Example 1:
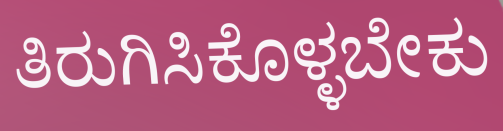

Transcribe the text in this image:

ತಿರುಗಿಸಿಕೊಳ್ಳಬೇಕು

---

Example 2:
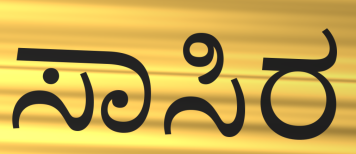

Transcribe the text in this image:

ಸಾಸಿರ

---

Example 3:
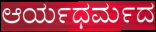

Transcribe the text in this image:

ಆರ್ಯಧರ್ಮದ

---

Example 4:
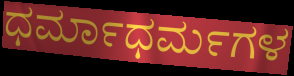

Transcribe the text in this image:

ಧರ್ಮಾಧರ್ಮಗಳ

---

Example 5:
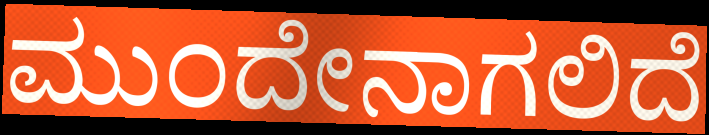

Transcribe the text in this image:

ಮುಂದೇನಾಗಲಿದೆ